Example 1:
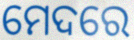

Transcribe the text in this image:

ମେଦରେ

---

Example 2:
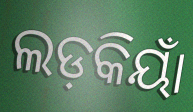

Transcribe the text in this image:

ଲଡ଼କିୟାଁ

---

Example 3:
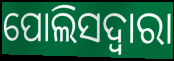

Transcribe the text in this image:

ପୋଲିସଦ୍ୱାରା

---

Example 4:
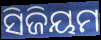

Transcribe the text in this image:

ସିଜିୟମ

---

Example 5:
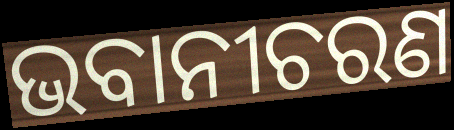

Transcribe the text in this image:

ଭବାନୀଚରଣ